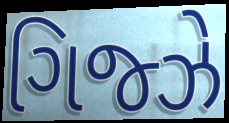
ગિજ્ઝે